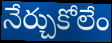
నేర్చుకోలేం